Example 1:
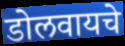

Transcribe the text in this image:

डोलवायचे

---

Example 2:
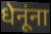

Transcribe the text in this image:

धेनूंना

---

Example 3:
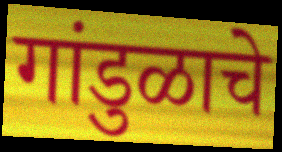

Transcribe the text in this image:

गांडुळाचे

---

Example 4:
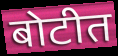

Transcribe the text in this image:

बोटीत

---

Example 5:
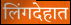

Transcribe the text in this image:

लिंगदेहात